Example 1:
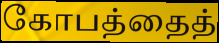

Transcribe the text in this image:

கோபத்தைத்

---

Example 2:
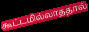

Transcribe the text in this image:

கூட்டமில்லாததால்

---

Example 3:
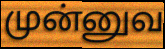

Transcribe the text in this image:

முன்னுவ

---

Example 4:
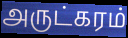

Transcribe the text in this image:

அருட்கரம்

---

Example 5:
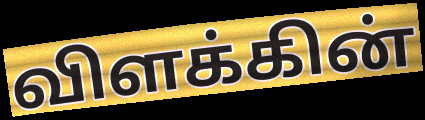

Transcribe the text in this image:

விளக்கின்